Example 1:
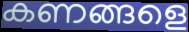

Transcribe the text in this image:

കണങ്ങളെ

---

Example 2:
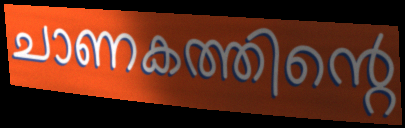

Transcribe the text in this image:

ചാണകത്തിന്റെ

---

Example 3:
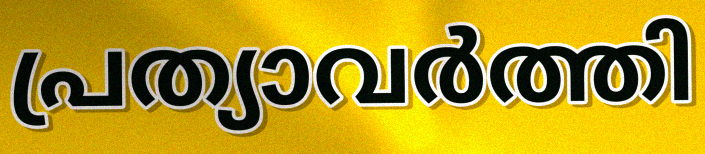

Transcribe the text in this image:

പ്രത്യാവർത്തി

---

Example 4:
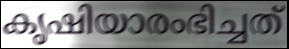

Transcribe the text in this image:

കൃഷിയാരംഭിച്ചത്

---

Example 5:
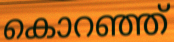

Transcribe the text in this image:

കൊറഞ്ഞ്